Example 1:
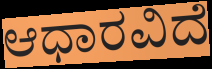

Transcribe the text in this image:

ಆಧಾರವಿದೆ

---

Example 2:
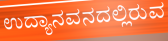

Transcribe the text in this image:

ಉದ್ಯಾನವನದಲ್ಲಿರುವ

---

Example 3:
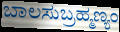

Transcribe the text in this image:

ಬಾಲಸುಬ್ರಹ್ಮಣ್ಯಂ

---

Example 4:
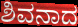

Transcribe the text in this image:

ಶಿವನಾದ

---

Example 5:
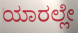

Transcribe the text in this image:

ಯಾರಲ್ಲೇ